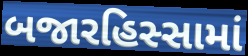
બજારહિસ્સામાં